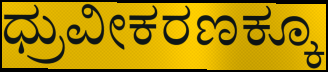
ಧ್ರುವೀಕರಣಕ್ಕೂ